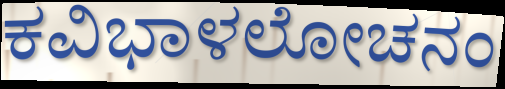
ಕವಿಭಾಳಲೋಚನಂ